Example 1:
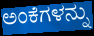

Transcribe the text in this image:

ಅಂಕೆಗಳನ್ನು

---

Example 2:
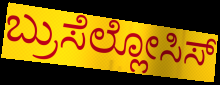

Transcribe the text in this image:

ಬ್ರುಸೆಲ್ಲೋಸಿಸ್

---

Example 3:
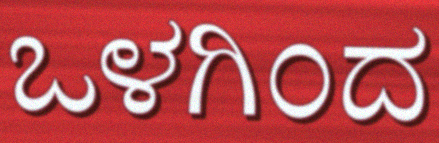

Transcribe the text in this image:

ಒಳಗಿಂದ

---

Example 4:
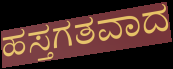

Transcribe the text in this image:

ಹಸ್ತಗತವಾದ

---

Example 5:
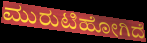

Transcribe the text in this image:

ಮುರುಟಿಹೋಗಿದೆ